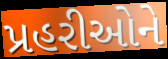
પ્રહરીઓને